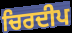
ਚਿਰਦੀਪ